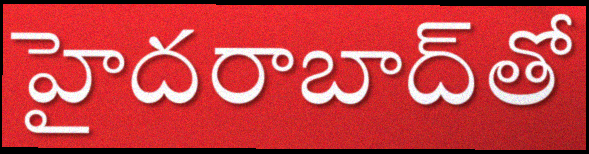
హైదరాబాద్‌తో